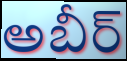
అబీర్